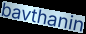
bavthanin